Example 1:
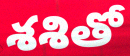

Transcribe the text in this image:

శశితో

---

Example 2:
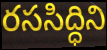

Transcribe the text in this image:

రససిద్ధిని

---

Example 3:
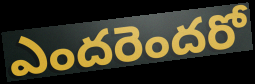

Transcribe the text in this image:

ఎందరెందరో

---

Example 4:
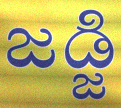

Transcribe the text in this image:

జడ్జి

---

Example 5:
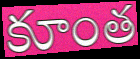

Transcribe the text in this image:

కూంత